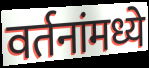
वर्तनांमध्ये